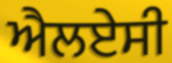
ਐਲਏਸੀ